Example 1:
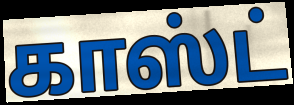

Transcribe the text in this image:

காஸ்ட்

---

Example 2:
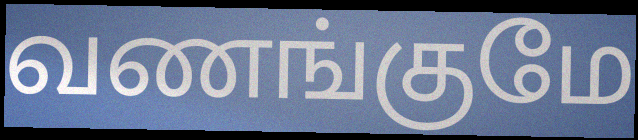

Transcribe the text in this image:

வணங்குமே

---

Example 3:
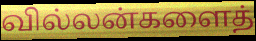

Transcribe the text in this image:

வில்லன்களைத்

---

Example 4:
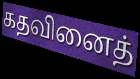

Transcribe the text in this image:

கதவினைத்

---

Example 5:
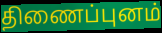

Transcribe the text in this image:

திணைப்புனம்